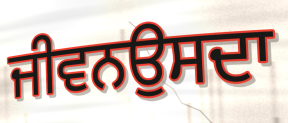
ਜੀਵਨਉਸਦਾ